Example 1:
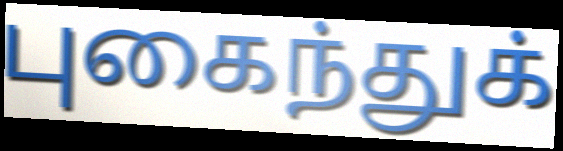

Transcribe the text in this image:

புகைந்துக்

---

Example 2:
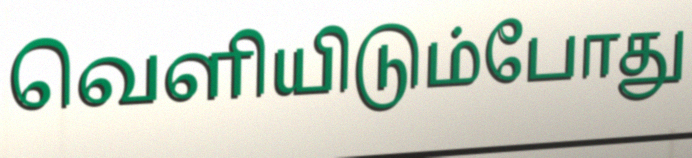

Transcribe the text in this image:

வெளியிடும்போது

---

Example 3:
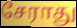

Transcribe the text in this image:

சேராது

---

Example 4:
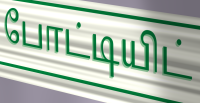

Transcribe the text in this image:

போட்டியிட்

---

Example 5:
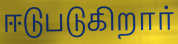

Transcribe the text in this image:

ஈடுபடுகிறார்